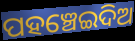
ପହଞ୍ଚେଇଦିଅ